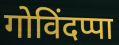
गोविंदप्पा